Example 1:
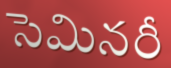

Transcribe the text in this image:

సెమినరీ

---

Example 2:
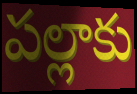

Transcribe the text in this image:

పల్లాకు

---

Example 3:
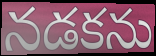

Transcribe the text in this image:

నడకను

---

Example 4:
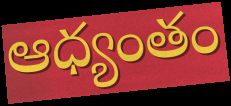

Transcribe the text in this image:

ఆధ్యంతం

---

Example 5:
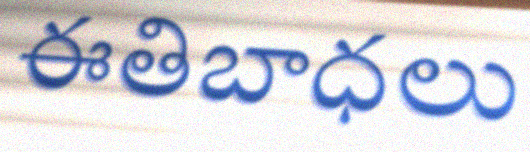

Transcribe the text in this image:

ఈతిబాధలు